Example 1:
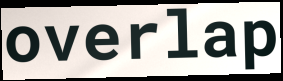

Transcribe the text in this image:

overlap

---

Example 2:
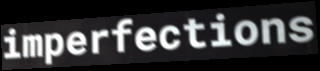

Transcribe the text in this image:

imperfections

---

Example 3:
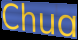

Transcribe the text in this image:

Chua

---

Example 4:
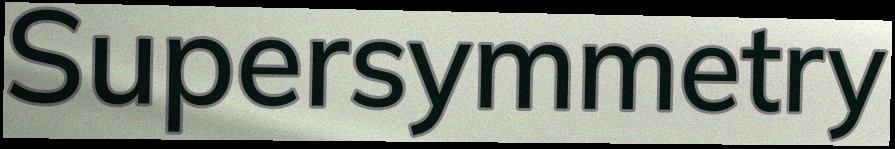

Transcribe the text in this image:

Supersymmetry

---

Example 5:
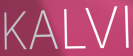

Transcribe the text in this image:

KALVI